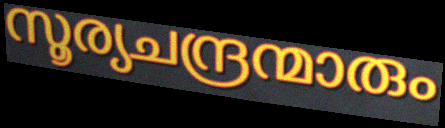
സൂര്യചന്ദ്രന്മാരും